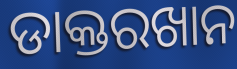
ଡାକ୍ତରଖାନ